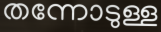
തന്നോടുള്ള